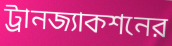
ট্রানজ্যাকশনের